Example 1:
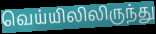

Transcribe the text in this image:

வெய்யிலிலிருந்து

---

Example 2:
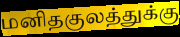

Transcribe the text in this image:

மனிதகுலத்துக்கு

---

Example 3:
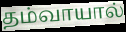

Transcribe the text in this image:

தம்வாயால்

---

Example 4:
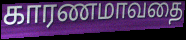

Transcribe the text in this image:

காரணமாவதை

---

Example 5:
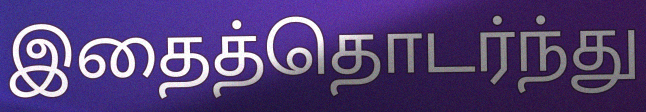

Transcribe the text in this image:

இதைத்தொடர்ந்து